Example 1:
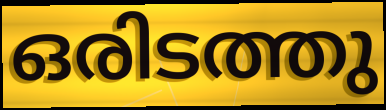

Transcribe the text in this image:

ഒരിടത്തു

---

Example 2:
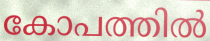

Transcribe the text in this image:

കോപത്തിൽ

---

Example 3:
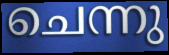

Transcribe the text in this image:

ചെന്നു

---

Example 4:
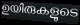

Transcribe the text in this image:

ഉയിരുകളുടെ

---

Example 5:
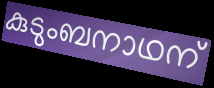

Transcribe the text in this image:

കുടുംബനാഥന്